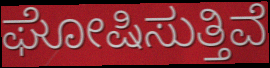
ಘೋಷಿಸುತ್ತಿವೆ